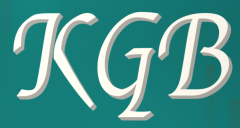
KGB